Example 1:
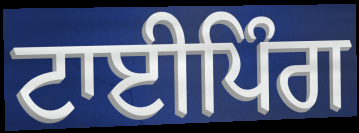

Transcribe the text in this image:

ਟਾਈਪਿੰਗ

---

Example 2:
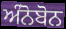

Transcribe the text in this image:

ਅੰਨੋਬੋਨ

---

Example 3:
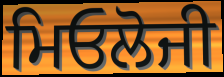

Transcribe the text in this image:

ਮਿਓਲੋਜੀ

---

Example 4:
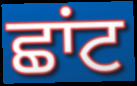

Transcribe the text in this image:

ਛਾਂਟ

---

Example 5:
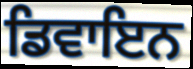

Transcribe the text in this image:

ਡਿਵਾਇਨ